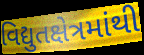
વિદ્યુતક્ષેત્રમાંથી